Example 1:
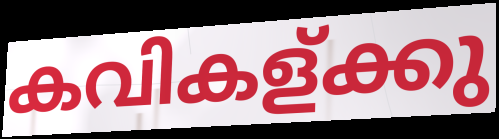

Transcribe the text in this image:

കവികള്ക്കു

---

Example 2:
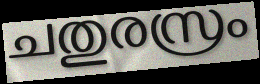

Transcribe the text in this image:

ചതുരസ്രം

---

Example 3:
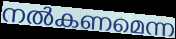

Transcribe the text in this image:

നൽകണമെന്ന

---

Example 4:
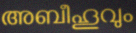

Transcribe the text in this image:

അബീഹൂവും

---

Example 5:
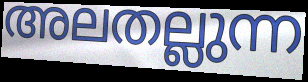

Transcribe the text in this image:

അലതല്ലുന്ന